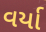
વર્યા